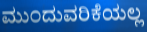
ಮುಂದುವರಿಕೆಯಲ್ಲ